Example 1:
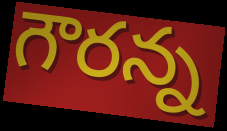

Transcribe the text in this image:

గౌరన్న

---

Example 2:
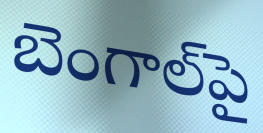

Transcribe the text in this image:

బెంగాల్‌పై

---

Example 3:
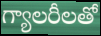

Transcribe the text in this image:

గ్యాలరీలతో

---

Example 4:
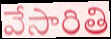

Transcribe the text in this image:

వేసారితి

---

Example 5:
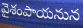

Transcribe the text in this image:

వైశంపాయనున